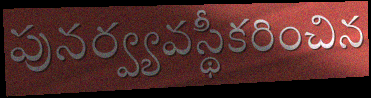
పునర్వ్యవస్థీకరించిన